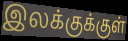
இலக்குக்குள்